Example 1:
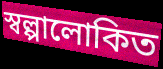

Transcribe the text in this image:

স্বল্পালোকিত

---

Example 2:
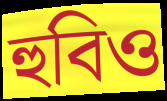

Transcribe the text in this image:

হুবিও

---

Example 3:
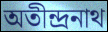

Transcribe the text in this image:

অতীন্দ্রনাথ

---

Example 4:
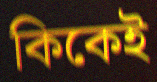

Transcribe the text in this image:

কিকেই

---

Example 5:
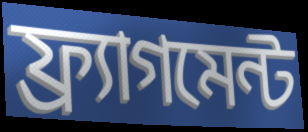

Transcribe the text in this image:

ফ্র্যাগমেন্ট